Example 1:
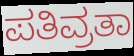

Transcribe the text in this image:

ಪತಿವ್ರತಾ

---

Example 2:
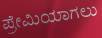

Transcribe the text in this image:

ಪ್ರೇಮಿಯಾಗಲು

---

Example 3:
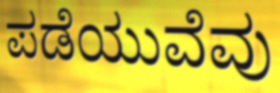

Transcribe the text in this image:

ಪಡೆಯುವೆವು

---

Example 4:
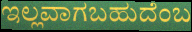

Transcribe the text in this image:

ಇಲ್ಲವಾಗಬಹುದೆಂಬ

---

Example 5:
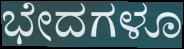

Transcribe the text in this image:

ಭೇದಗಳೂ